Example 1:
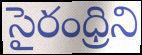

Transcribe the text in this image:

సైరంధ్రిని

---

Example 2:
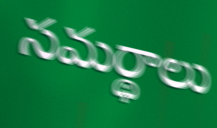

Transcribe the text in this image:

సమర్థాలు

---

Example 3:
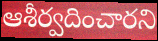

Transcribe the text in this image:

ఆశీర్వదించారని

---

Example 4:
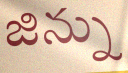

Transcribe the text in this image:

జిన్ను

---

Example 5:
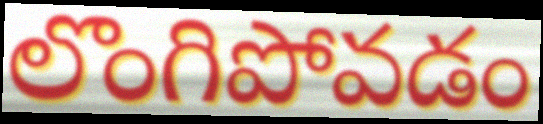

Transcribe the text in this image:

లొంగిపోవడం